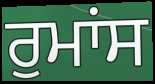
ਰੁਮਾਂਸ